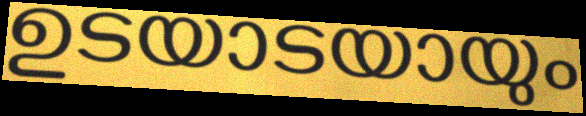
ഉടയാടയായും